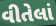
વીતેલાં